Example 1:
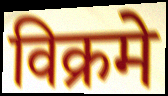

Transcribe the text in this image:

विक्रमे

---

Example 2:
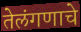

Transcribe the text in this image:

तेलंगणाचे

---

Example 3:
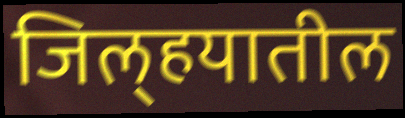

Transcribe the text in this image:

जिल्हयातील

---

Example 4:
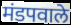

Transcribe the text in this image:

मंडपवाले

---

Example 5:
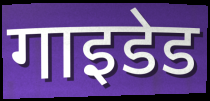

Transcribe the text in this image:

गाइडेड